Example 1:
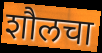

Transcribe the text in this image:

शौलचा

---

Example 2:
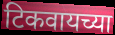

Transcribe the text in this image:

टिकवायच्या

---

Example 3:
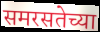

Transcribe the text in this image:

समरसतेच्या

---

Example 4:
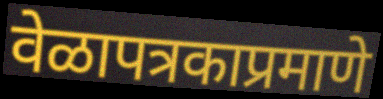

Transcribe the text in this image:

वेळापत्रकाप्रमाणे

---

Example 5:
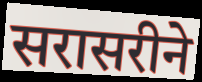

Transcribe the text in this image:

सरासरीने